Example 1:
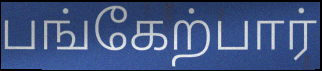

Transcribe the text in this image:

பங்கேற்பார்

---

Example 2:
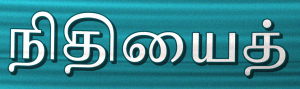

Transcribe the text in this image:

நிதியைத்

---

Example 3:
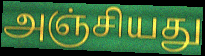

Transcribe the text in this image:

அஞ்சியது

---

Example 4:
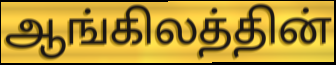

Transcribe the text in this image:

ஆங்கிலத்தின்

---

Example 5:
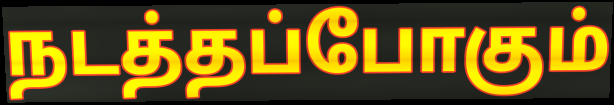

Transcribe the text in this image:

நடத்தப்போகும்